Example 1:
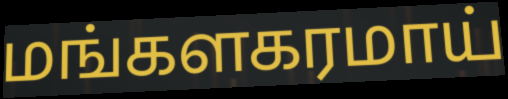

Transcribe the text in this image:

மங்களகரமாய்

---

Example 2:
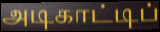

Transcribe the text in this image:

அடிகாட்டிப்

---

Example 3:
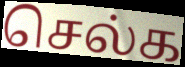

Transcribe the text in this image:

செல்க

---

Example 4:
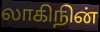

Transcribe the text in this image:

லாகிநின்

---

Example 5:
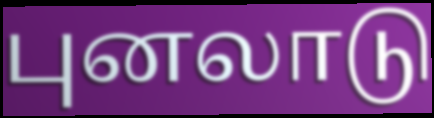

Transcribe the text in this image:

புனலாடு